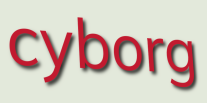
cyborg